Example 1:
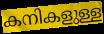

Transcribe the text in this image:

കനികളുള്ള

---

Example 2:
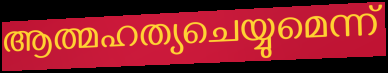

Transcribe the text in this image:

ആത്മഹത്യചെയ്യുമെന്ന്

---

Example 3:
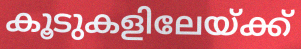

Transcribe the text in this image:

കൂടുകളിലേയ്ക്ക്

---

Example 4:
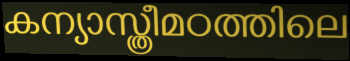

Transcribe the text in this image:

കന്യാസ്ത്രീമഠത്തിലെ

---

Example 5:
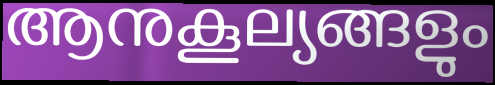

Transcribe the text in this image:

ആനുകൂല്യങ്ങളും